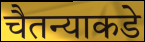
चैतन्याकडे